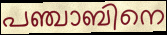
പഞ്ചാബിനെ